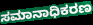
ಸಮಾನಾಧಿಕರಣ